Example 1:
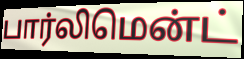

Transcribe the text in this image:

பார்லிமென்ட்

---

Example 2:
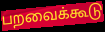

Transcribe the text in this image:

பறவைக்கூடு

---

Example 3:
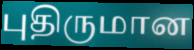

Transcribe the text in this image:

புதிருமான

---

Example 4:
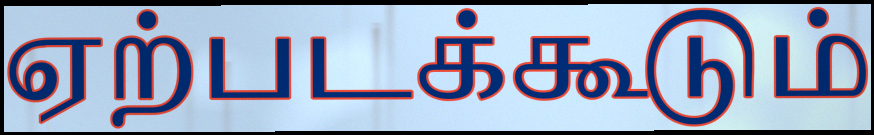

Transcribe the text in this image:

ஏற்படக்கூடும்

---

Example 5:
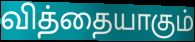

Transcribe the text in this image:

வித்தையாகும்